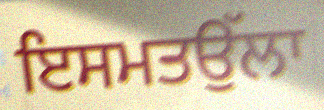
ਇਸਮਤਉੱਲਾ